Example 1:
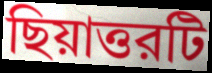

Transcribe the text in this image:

ছিয়াত্তরটি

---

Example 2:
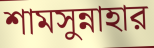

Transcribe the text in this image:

শামসুন্নাহার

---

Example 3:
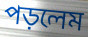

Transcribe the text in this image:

পড়লেম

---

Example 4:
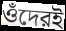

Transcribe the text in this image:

ওঁদেরই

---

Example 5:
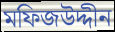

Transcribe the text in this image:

মফিজউদ্দীন